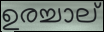
ഉരച്ചാല്